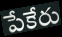
పేకేరు